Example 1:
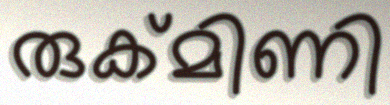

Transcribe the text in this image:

രുക്മിണി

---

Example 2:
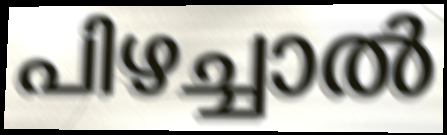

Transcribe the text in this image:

പിഴച്ചാൽ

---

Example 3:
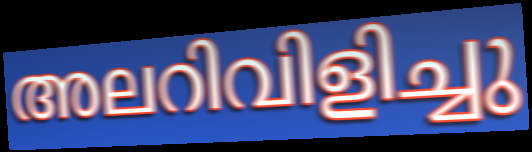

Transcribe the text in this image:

അലറിവിളിച്ചു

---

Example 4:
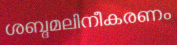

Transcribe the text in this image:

ശബ്ദമലിനീകരണം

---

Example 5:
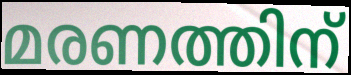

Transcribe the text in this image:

മരണത്തിന്